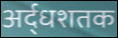
अर्द्धशतक